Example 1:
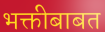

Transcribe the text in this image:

भक्तीबाबत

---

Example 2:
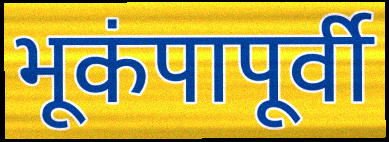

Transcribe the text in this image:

भूकंपापूर्वी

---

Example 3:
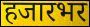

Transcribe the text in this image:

हजारभर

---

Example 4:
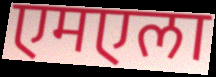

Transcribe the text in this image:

एमएला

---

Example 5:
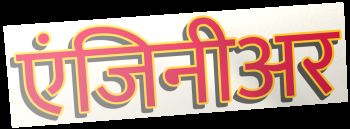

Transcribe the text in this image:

एंजिनीअर